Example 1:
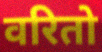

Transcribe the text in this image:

वरितो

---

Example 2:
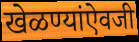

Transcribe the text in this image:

खेळण्यांऐवजी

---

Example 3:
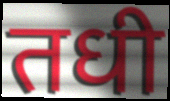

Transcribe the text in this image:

तधी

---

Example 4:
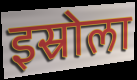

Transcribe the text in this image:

इस्रोला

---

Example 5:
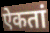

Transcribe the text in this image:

ऐकतां